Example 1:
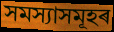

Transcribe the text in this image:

সমস্যাসমূহৰ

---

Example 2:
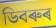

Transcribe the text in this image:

ডিবৰুৰ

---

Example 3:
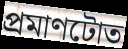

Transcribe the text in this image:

প্ৰমাণটোত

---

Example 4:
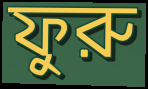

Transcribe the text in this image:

ফুৰু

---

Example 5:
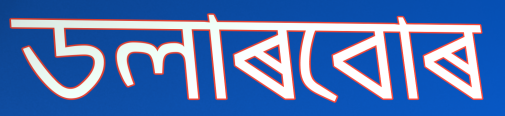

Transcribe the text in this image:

ডলাৰবোৰ